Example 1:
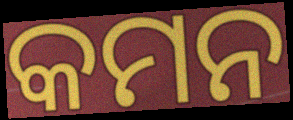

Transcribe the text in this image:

କମନ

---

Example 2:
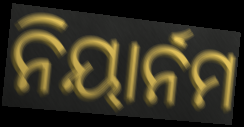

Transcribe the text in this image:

ନିୟାର୍ନମ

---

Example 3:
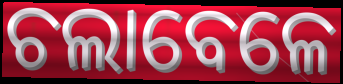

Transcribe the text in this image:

ଚଲାବେଳେ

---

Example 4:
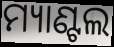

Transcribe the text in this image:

ମ୍ୟାଣ୍ଟଲ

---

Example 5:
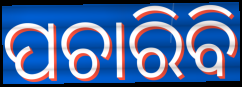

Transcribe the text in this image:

ପଚାରିବି